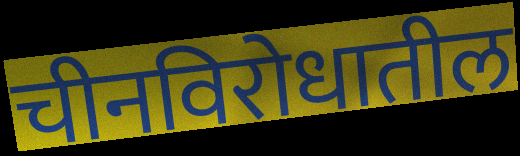
चीनविरोधातील